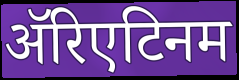
ॲरिएटिनम